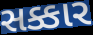
સક્કાર